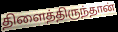
திளைத்திருந்தான்